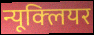
न्‍यूक्‍लियर